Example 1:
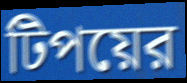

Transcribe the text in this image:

টিপয়ের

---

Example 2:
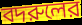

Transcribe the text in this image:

বদরুলের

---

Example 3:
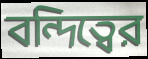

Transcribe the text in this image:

বন্দিত্বের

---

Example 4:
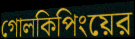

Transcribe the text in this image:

গোলকিপিংয়ের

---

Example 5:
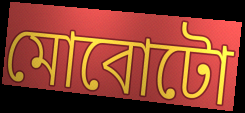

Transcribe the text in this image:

মোবোটো